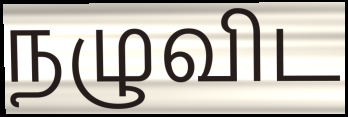
நழுவிட